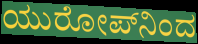
ಯುರೋಪ್‌ನಿಂದ